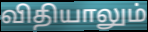
விதியாலும்